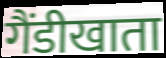
गैंडीखाता